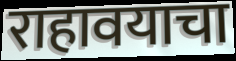
राहावयाचा